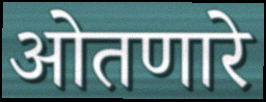
ओतणारे